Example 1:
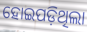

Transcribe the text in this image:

ହୋଇପଡ଼ିଥିଲା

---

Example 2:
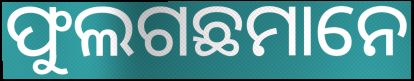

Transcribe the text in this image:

ଫୁଲଗଛମାନେ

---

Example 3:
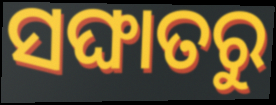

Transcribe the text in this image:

ସଙ୍ଘାତରୁ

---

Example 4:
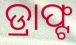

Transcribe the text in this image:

ଡ୍ରାଫ୍ଟ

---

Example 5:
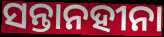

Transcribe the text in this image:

ସନ୍ତାନହୀନା